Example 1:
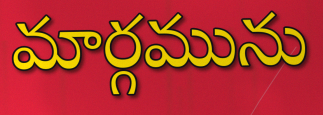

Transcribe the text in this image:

మార్గమును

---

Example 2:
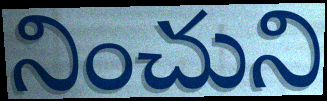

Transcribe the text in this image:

నించుని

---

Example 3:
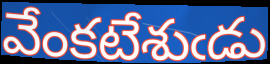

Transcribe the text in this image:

వేంకటేశుఁడు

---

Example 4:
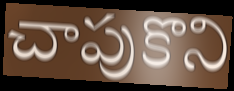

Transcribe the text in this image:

చాపుకొని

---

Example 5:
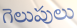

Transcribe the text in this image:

గెలుపులు